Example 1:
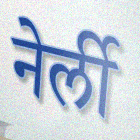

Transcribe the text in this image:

नेर्ली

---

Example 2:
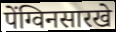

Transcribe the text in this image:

पेंग्विनसारखे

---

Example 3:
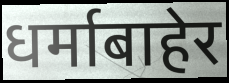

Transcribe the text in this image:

धर्माबाहेर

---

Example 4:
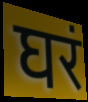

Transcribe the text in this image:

घरं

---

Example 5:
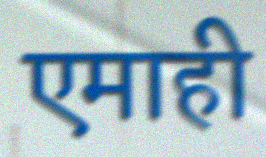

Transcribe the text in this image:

एमाही